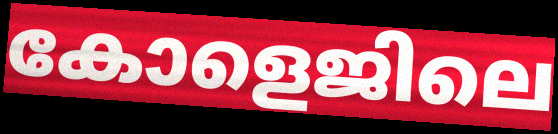
കോളെജിലെ